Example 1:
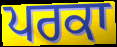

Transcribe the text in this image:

ਪਰਕਾ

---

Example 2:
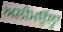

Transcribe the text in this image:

ਅਲੀਮਉੱਲ੍ਹਾ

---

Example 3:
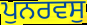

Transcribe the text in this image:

ਪੁਨਰਵਸੁ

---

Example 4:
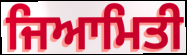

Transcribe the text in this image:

ਜਿਆਮਿਤੀ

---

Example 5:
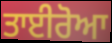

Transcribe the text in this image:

ਤਾਈਰੋਆ